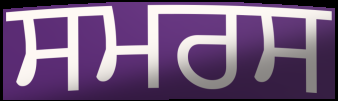
ਸਮਰਸ